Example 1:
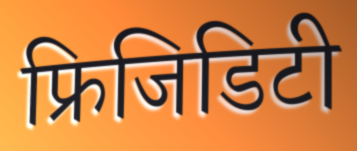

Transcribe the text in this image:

फ्रिजिडिटी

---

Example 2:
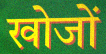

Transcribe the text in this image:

खोजों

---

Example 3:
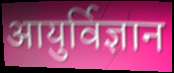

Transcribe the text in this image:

आयुर्विज्ञान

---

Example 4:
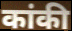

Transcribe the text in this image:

कांकी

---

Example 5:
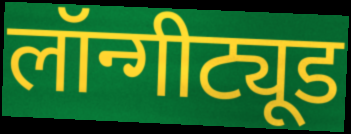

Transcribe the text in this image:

लॉन्गीट्यूड